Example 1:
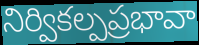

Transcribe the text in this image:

నిర్వికల్పప్రభావా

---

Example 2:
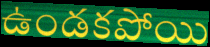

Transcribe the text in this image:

ఉండకపోయి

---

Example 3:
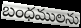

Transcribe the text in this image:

బంధములను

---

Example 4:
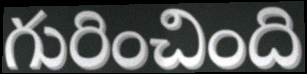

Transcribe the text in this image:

గురించింది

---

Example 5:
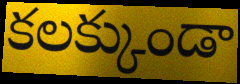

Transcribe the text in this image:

కలక్కుండా